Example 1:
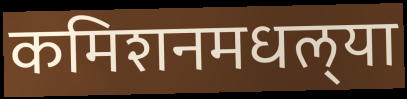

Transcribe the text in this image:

कमिशनमधल्या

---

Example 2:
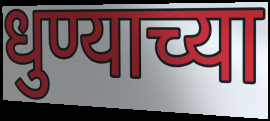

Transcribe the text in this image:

धुण्याच्या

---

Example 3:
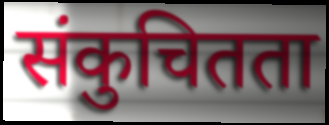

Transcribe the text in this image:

संकुचितता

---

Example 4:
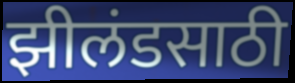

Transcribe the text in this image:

झीलंडसाठी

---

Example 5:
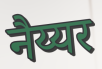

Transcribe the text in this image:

नैय्यर